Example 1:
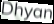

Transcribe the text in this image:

Dhyan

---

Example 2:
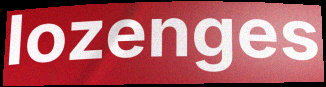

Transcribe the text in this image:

lozenges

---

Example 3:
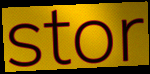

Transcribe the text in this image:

stor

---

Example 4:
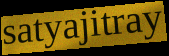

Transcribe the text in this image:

satyajitray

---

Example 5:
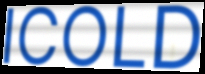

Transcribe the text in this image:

ICOLD